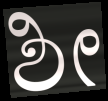
ಶೀ